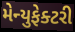
મેન્યુફેક્ટરી